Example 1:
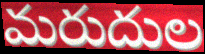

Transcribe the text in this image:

మరుదుల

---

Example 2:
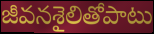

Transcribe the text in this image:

జీవనశైలితోపాటు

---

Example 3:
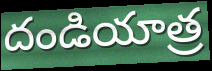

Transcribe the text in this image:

దండియాత్ర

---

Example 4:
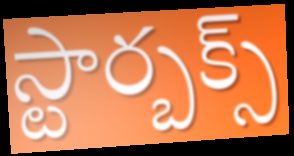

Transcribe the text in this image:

స్టార్బక్స్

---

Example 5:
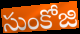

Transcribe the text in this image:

సుంకోజి